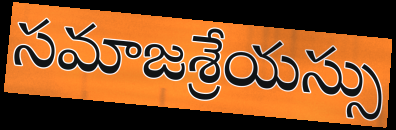
సమాజశ్రేయస్సు